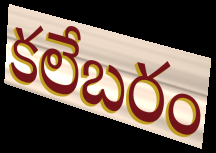
కలేబరం